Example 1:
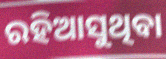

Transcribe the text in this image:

ରହିଆସୁଥିବା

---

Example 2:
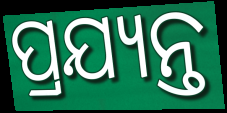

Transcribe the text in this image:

ପ୍ରଯ୍ୟନ୍ତ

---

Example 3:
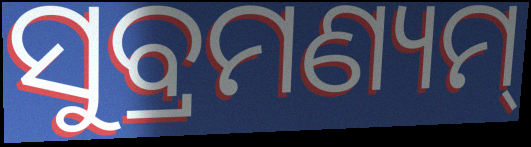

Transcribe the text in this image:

ସୁବ୍ରମଣ୍ୟମ୍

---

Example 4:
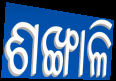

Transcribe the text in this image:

ଶଙ୍ଖାଳି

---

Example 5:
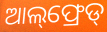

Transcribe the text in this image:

ଆଲ୍‌ଫ୍ରେଡ୍